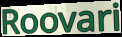
Roovari